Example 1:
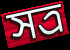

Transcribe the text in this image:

সত্ৰ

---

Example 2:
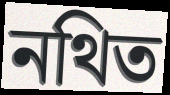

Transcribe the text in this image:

নথিত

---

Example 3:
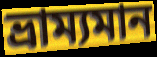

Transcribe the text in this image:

ভ্ৰাম্যমান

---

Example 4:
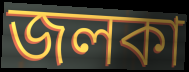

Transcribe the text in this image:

জলকা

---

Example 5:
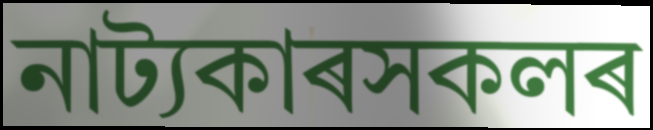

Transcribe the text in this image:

নাট্যকাৰসকলৰ